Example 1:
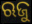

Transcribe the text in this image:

ଋଜୁ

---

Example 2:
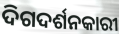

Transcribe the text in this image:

ଦିଗଦର୍ଶନକାରୀ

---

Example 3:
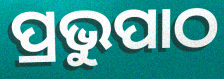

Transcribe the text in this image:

ପ୍ରଭୁପାଠ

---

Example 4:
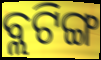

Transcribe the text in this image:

ବ୍ଲଟିଙ୍ଗ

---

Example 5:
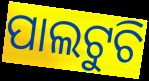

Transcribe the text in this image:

ପାଲଟୁଚି